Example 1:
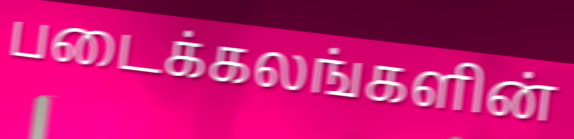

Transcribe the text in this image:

படைக்கலங்களின்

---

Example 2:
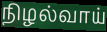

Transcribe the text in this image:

நிழல்வாய்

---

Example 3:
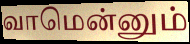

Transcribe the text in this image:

வாமென்னும்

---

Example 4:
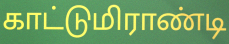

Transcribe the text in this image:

காட்டுமிராண்டி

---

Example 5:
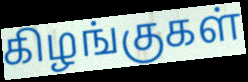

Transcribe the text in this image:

கிழங்குகள்